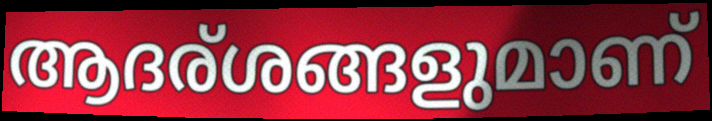
ആദര്ശങ്ങളുമാണ്